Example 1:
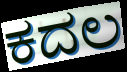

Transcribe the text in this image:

ಕದಲ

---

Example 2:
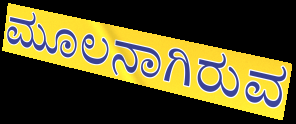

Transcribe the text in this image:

ಮೂಲನಾಗಿರುವ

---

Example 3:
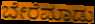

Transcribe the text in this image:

ಬೇರೆಮಾಡು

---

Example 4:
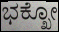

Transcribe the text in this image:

ಭಕ್ಖೋ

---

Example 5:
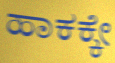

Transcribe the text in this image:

ಹಾಕಕ್ಕೇ